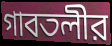
গাবতলীর